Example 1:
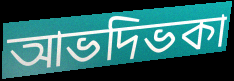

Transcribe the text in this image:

আভদিভকা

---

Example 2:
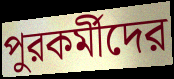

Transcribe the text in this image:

পুরকর্মীদের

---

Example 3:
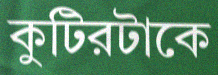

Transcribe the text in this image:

কুটিরটাকে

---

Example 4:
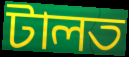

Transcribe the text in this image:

টালত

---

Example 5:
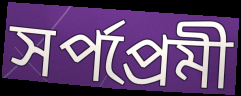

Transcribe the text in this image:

সর্পপ্রেমী